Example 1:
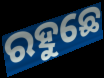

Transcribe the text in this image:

ରହୁଛେ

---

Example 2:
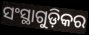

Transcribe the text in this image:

ସଂସ୍ଥାଗୁଡ଼ିକର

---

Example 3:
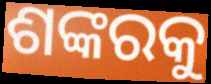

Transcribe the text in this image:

ଶଙ୍କରକୁ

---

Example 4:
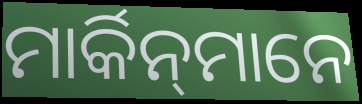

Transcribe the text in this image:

ମାର୍କିନ୍‌ମାନେ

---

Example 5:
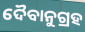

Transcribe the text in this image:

ଦୈବାନୁଗ୍ରହ